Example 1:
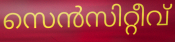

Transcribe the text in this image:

സെൻസിറ്റീവ്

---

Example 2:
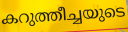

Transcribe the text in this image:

കറുത്തീച്ചയുടെ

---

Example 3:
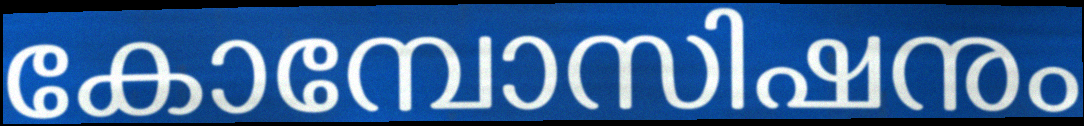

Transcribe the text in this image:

കോമ്പോസിഷനും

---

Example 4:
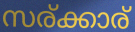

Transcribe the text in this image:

സര്ക്കാര്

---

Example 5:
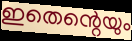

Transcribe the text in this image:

ഇതെന്റെയും